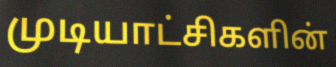
முடியாட்சிகளின்